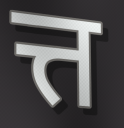
त्त